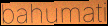
bahumati